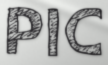
PIC